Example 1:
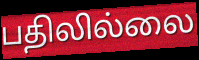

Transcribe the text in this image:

பதிலில்லை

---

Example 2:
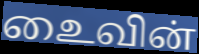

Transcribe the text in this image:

உைவின்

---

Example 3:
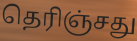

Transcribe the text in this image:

தெரிஞ்சது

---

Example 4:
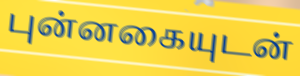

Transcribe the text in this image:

புன்னகையுடன்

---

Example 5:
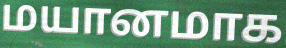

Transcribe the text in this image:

மயானமாக